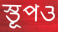
স্তূপও